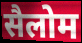
सैलोम